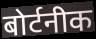
बोर्टनीक